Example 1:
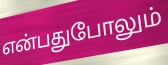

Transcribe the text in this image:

என்பதுபோலும்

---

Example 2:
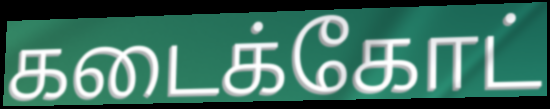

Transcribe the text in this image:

கடைக்கோட்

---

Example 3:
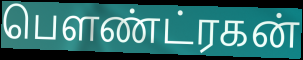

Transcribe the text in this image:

பௌண்ட்ரகன்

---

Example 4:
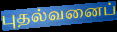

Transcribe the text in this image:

புதல்வனைப்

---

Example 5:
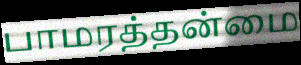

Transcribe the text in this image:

பாமரத்தன்மை